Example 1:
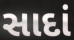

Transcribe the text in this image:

સાદાં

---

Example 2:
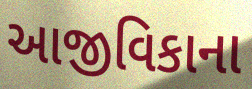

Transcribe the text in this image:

આજીવિકાના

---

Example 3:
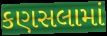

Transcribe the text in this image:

કણસલામાં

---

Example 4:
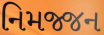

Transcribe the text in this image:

નિમજ્જન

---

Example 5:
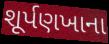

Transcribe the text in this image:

શૂર્પણખાના